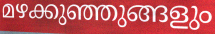
മഴക്കുഞ്ഞുങ്ങളും